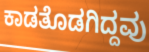
ಕಾಡತೊಡಗಿದ್ದವು